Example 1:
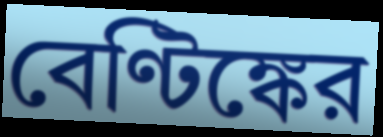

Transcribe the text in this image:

বেণ্টিঙ্কের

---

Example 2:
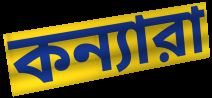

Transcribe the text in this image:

কন্যারা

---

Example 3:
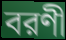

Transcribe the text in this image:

বরণী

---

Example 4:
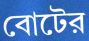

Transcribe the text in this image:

বোটের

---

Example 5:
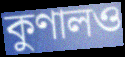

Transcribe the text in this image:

কুণালও